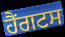
ਹੈਂਗਟਸ